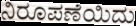
ನಿರೂಪಣೆಯಿದು